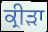
ਕ੍ਰੀੜਾ